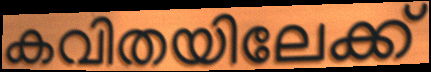
കവിതയിലേക്ക്